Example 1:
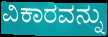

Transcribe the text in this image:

ವಿಕಾರವನ್ನು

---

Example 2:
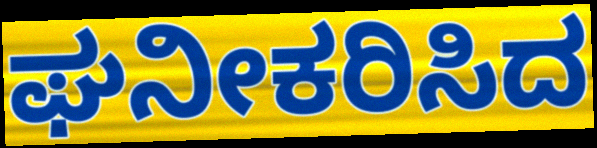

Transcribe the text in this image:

ಘನೀಕರಿಸಿದ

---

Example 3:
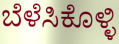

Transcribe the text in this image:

ಬೆಳೆಸಿಕೊಳ್ಳಿ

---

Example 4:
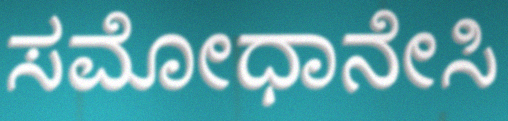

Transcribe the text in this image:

ಸಮೋಧಾನೇಸಿ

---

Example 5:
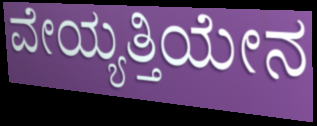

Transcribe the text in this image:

ವೇಯ್ಯತ್ತಿಯೇನ